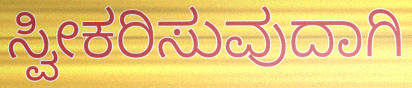
ಸ್ವೀಕರಿಸುವುದಾಗಿ